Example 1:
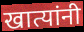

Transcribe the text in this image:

खात्यांनी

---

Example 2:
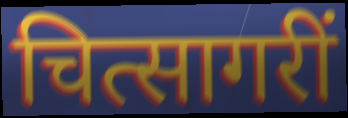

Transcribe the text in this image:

चित्सागरीं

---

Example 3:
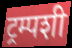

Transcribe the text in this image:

ट्रम्पशी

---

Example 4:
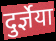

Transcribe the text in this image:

दुर्ज्ञेया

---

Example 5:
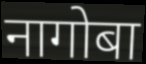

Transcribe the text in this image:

नागोबा